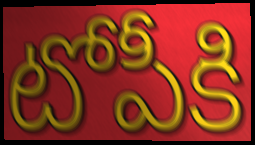
టోపీకి